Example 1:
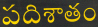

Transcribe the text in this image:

పదిశాతం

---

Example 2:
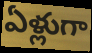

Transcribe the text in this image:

ఏళ్లుగా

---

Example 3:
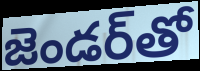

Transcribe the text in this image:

జెండర్‌తో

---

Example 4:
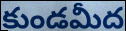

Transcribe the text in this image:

కుండమీద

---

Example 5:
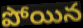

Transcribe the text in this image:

పోయిన